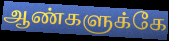
ஆண்களுக்கே